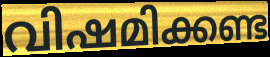
വിഷമിക്കണ്ട